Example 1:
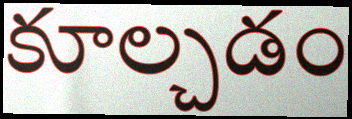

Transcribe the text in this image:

కూల్చడం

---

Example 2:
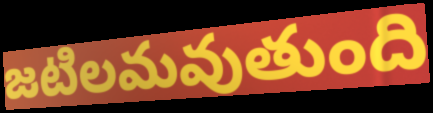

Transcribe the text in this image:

జటిలమవుతుంది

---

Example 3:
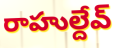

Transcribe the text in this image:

రాహుల్దేవ్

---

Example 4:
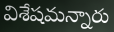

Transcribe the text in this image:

విశేషమన్నారు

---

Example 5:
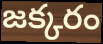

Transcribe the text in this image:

జక్కరం